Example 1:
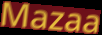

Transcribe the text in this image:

Mazaa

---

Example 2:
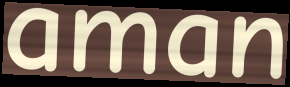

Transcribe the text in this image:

aman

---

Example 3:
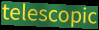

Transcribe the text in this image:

telescopic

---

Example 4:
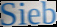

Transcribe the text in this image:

Sieb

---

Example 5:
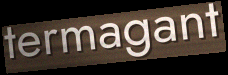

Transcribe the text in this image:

termagant